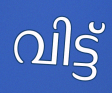
വിട്ട്